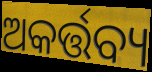
ଅକର୍ତ୍ତବ୍ୟ